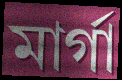
মাৰ্গা